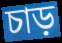
চাড়